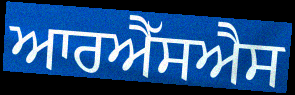
ਆਰਐੱਸਐਸ